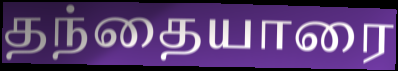
தந்தையாரை